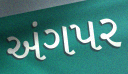
અંગપર